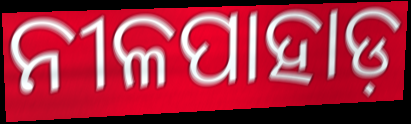
ନୀଳପାହାଡ଼